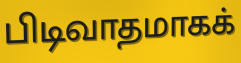
பிடிவாதமாகக்